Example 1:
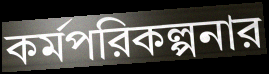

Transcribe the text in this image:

কর্মপরিকল্পনার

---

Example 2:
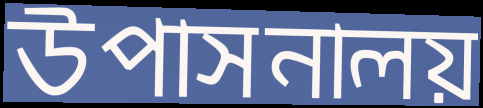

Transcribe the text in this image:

উপাসনালয়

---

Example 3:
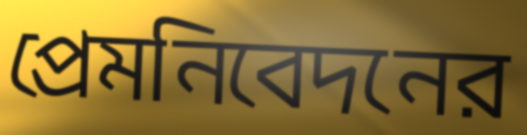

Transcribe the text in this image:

প্রেমনিবেদনের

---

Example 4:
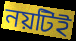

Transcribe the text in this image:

নয়টিই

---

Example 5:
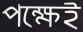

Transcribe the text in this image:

পক্ষেই